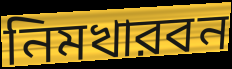
নিমখারবন